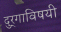
दुर्गाविषयी